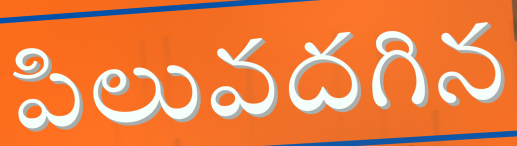
పిలువదగిన